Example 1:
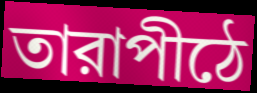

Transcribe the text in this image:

তারাপীঠে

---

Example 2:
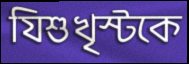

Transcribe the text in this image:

যিশুখৃস্টকে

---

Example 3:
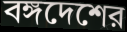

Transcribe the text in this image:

বঙ্গদেশের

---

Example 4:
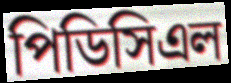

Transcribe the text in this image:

পিডিসিএল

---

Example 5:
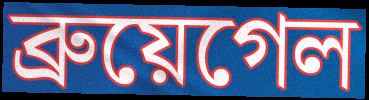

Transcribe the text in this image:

ব্রুয়েগেল